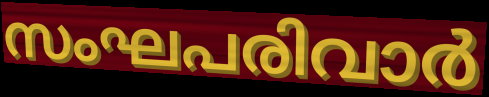
സംഘപരിവാർ